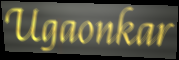
Ugaonkar